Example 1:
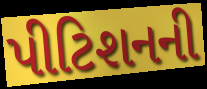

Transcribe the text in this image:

પીટિશનની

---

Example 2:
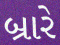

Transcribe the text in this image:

બ્રારે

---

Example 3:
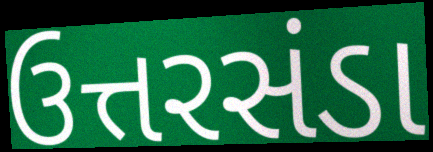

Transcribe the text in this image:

ઉત્તરસંડા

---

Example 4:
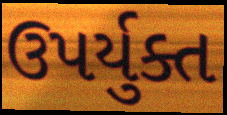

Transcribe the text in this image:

ઉપર્યુક્ત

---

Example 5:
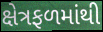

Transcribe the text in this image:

ક્ષેત્રફળમાંથી